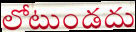
లోటుండదు